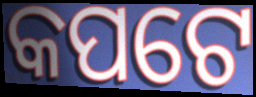
କପଟେ